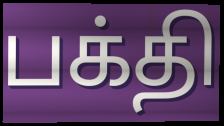
பக்தி